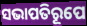
ସଭାପତିରୂପେ